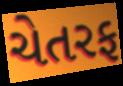
ચેતરફ